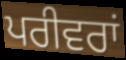
ਪਰੀਵਰਾਂ